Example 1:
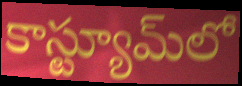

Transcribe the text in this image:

కాస్ట్యూమ్‌లో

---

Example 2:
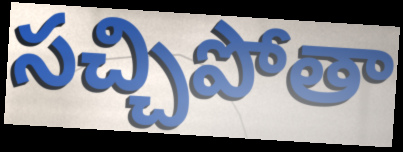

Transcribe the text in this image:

సచ్చిపోతా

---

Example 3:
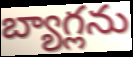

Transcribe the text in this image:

బ్యాగ్లను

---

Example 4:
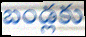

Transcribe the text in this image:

బండ్లకు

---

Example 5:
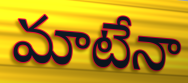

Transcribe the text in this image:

మాటేనా